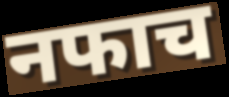
नफाच